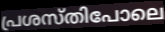
പ്രശസ്തിപോലെ